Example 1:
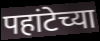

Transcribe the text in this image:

पहांटेच्या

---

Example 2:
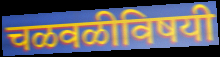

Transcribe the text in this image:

चळवळीविषयी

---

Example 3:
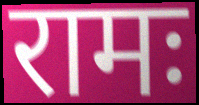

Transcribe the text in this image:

रामः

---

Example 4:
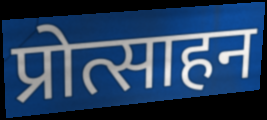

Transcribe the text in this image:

प्रोत्साहन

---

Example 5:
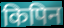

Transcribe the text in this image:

किपिन